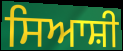
ਸਿਆਸ਼ੀ